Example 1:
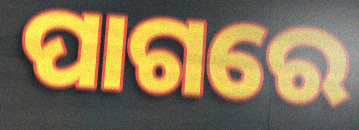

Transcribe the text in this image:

ପାଗରେ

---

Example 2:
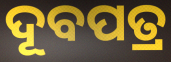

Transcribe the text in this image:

ଦୂବପତ୍ର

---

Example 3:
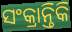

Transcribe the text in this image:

ସଂକ୍ରାନ୍ତିକି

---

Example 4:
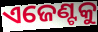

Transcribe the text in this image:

ଏଜେଣ୍ଟକୁ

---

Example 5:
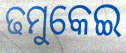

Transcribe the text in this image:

ଢମୁକେଇ